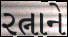
રત્નાને